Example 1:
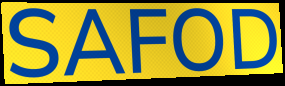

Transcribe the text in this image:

SAFOD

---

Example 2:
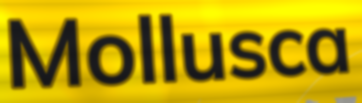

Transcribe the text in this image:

Mollusca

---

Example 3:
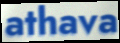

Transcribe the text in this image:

athava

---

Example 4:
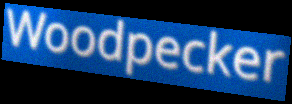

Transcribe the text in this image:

Woodpecker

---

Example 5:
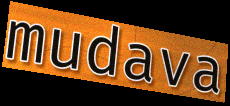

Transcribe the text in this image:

mudava